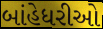
બાંહેધરીઓ